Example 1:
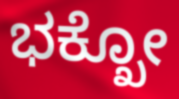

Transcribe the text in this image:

ಭಕ್ಖೋ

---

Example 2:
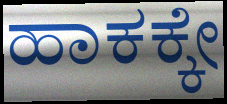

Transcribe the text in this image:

ಹಾಕಕ್ಕೇ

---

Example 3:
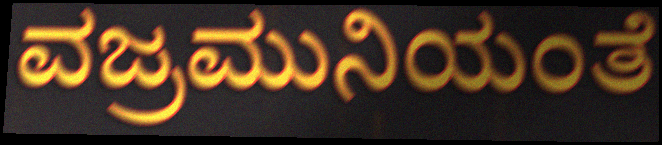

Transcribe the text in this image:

ವಜ್ರಮುನಿಯಂತೆ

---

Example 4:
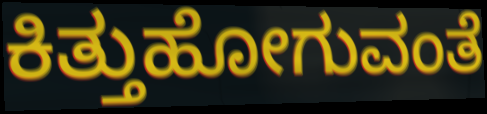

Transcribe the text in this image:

ಕಿತ್ತುಹೋಗುವಂತೆ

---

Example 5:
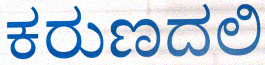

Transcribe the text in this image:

ಕರುಣದಲಿ